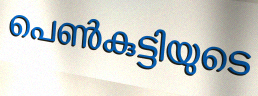
പെൺകുട്ടിയുടെ